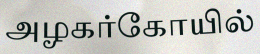
அழகர்கோயில்